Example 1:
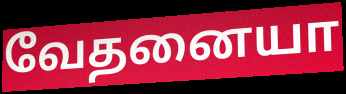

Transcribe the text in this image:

வேதனையா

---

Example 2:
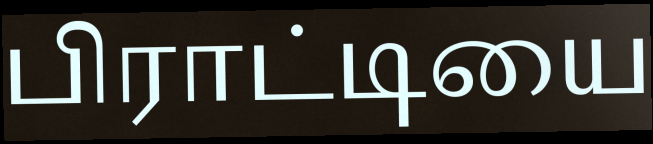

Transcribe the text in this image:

பிராட்டியை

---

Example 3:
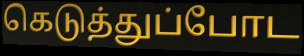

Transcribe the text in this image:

கெடுத்துப்போட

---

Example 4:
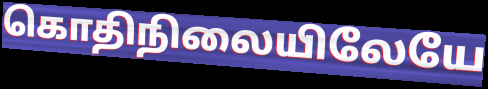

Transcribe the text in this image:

கொதிநிலையிலேயே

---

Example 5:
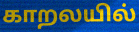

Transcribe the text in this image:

காறலயில்